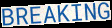
BREAKING